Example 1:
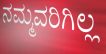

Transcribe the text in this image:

ನಮ್ಮವರಿಗಿಲ್ಲ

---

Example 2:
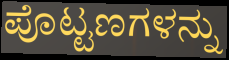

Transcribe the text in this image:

ಪೊಟ್ಟಣಗಳನ್ನು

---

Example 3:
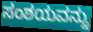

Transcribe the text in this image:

ಸಂಶಯವನ್ನು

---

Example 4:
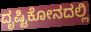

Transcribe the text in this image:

ದೃಷ್ಟಿಕೋನದಲ್ಲಿ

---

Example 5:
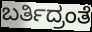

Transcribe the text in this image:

ಬರ್ತಿದ್ರಂತೆ